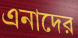
এনাদের